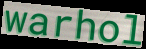
warhol